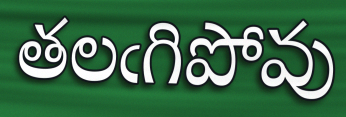
తలఁగిపోవు